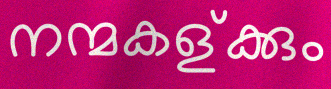
നന്മകള്ക്കും